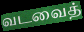
வடவைத்